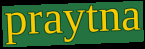
praytna